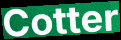
Cotter